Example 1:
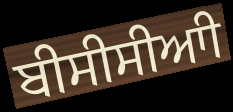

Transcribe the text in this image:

ਬੀਸੀਸੀਆੀ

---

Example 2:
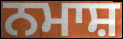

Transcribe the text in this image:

ਨਮਾਸ਼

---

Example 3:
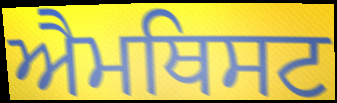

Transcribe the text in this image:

ਐਮਥਿਸਟ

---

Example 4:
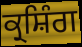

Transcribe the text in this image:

ਕ੍ਰਸ਼ਿੰਗ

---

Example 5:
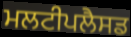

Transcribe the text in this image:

ਮਲਟੀਪਲੈਸਡ